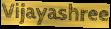
Vijayashree